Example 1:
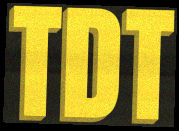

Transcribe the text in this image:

TDT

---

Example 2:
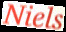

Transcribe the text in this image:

Niels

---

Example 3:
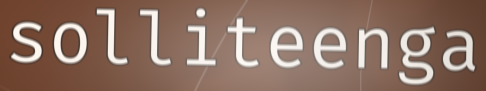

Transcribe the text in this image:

solliteenga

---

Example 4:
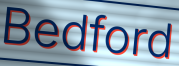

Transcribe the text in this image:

Bedford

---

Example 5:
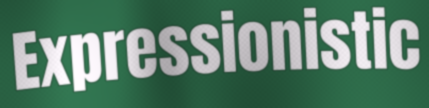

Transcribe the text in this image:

Expressionistic